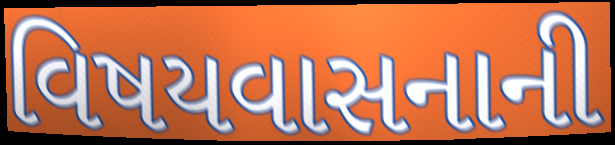
વિષયવાસનાની